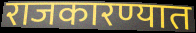
राजकारण्यात